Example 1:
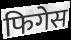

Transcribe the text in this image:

फिगेस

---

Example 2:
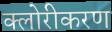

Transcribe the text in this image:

क्लोरीकरण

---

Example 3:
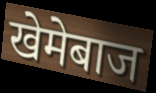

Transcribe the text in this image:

खेमेबाज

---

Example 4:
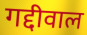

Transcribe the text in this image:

गद्दीवाल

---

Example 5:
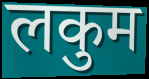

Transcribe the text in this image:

लकुम